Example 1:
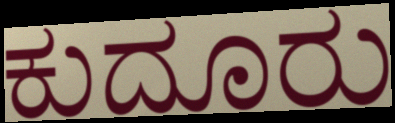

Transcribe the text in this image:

ಕುದೂರು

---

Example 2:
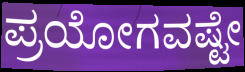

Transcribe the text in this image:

ಪ್ರಯೋಗವಷ್ಟೇ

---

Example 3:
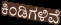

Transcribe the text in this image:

ಕಿಂಡಿಗಳಿವೆ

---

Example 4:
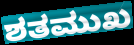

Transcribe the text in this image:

ಶತಮುಖ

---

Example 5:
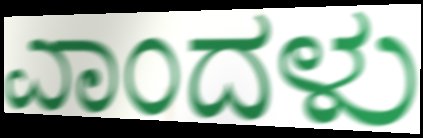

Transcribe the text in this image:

ಎಾಂದಳು